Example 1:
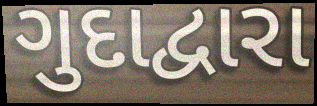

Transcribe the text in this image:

ગુદાદ્વારા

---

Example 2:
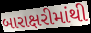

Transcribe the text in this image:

બારાક્ષરીમાંથી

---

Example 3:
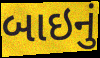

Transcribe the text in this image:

બાઇનું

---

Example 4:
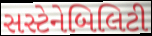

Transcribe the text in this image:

સસ્ટેનેબિલિટી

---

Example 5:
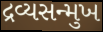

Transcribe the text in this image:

દ્રવ્યસન્મુખ